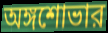
অঙ্গশোভার